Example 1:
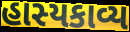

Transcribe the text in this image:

હાસ્યકાવ્ય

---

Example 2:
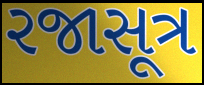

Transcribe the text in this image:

રજાસૂત્ર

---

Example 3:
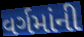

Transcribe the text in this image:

વર્ગમાંની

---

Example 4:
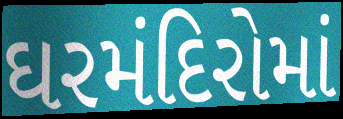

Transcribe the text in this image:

ઘરમંદિરોમાં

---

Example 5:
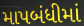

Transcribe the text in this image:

માપબંધીમાં